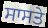
ਸਾਸਤੇ